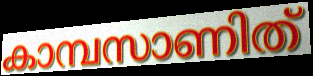
കാമ്പസാണിത്